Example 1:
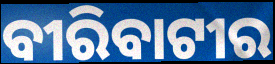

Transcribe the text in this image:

ବୀରିବାଟୀର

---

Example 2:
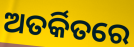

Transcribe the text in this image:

ଅତର୍କିତରେ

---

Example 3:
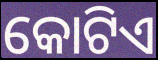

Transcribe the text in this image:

କୋଟିଏ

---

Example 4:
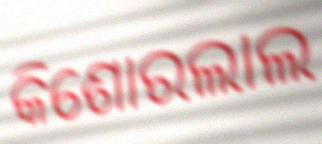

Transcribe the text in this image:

କିଶୋରଲାଲ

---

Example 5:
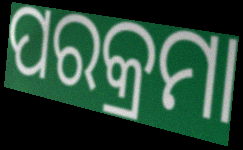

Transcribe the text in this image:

ପରକ୍ରମା